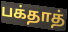
பக்தாத்